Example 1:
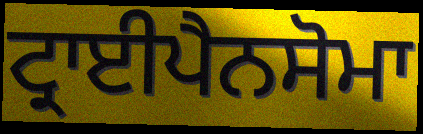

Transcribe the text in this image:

ਟ੍ਰਾਈਪੈਨਸੋਮਾ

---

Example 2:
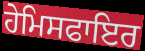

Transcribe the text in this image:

ਹੇਮਿਸਫਾਇਰ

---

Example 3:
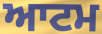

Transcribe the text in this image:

ਆਟਮ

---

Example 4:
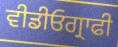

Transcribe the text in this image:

ਵੀਡੀਓਗ੍ਰਾਫੀ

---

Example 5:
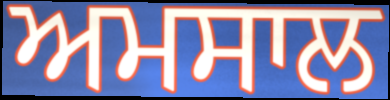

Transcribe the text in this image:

ਅਮਸਾਲ